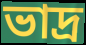
ভাদ্ৰ